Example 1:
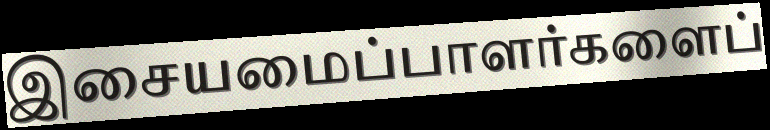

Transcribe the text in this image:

இசையமைப்பாளர்களைப்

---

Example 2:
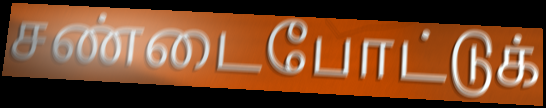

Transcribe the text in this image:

சண்டைபோட்டுக்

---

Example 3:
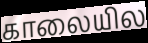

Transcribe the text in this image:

காலையில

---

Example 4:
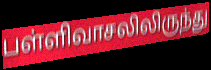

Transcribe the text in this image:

பள்ளிவாசலிலிருந்து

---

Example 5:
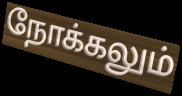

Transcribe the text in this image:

நோக்கலும்